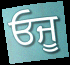
ਓਜੂ